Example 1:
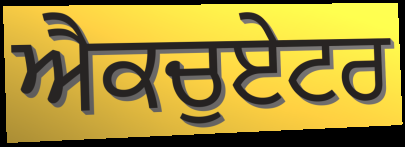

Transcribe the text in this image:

ਐਕਚੁਏਟਰ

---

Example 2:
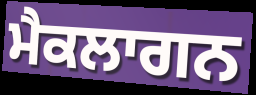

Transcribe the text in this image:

ਮੈਕਲਾਗਨ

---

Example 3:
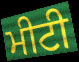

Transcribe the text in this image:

ਮੀਟੀ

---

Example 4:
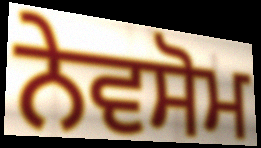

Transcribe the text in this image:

ਨੇਵਸੋਮ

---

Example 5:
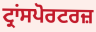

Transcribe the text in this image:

ਟ੍ਰਾਂਸਪੋਰਟਰਜ਼